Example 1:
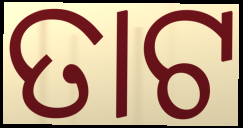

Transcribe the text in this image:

ତାଟ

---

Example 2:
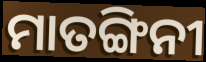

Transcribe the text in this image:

ମାତଙ୍ଗିନୀ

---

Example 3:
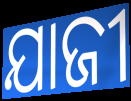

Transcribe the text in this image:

ଯାଜୀ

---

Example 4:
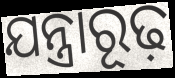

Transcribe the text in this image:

ଯନ୍ତ୍ରାରୂଢ଼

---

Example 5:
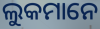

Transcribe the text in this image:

ଲୁକମାନେ